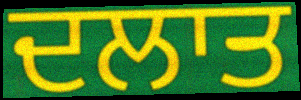
ਦਲਾਤ